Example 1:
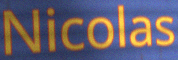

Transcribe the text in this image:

Nicolas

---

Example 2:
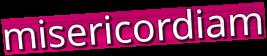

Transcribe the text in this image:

misericordiam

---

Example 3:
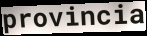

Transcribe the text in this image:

provincia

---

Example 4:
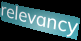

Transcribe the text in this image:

relevancy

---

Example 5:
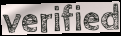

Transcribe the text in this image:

verified